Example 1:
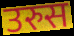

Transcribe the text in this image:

उरुस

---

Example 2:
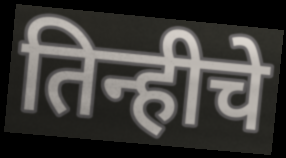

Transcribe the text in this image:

तिन्हीचे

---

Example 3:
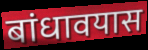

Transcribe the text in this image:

बांधावयास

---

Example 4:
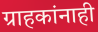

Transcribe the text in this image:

ग्राहकांनाही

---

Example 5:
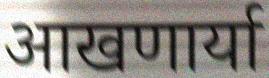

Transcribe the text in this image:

आखणार्या